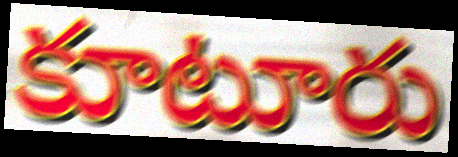
కూటూరు